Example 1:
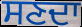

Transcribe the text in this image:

ਸਣਦਾ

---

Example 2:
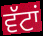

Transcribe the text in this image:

ਵੱਟਾਂ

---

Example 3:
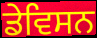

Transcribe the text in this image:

ਡੇਵਿਸਨ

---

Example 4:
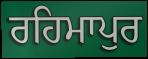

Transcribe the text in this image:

ਰਹਿਮਾਪੁਰ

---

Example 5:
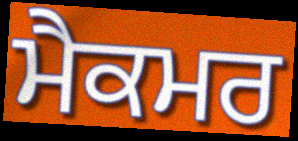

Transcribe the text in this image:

ਮੈਕਮਰ